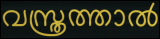
വസ്ത്രത്താൽ